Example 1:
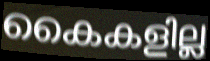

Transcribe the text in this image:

കൈകളില്ല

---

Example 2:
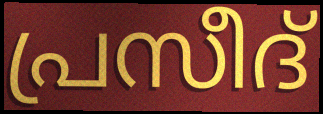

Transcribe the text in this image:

പ്രസീദ്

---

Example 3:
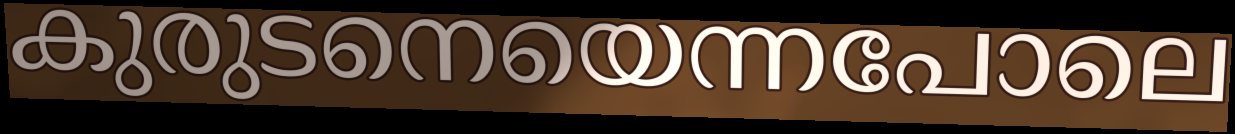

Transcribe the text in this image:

കുരുടനെയെന്നപോലെ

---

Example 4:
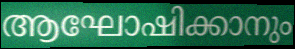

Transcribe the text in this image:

ആഘോഷിക്കാനും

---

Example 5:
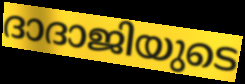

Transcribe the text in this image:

ദാദാജിയുടെ